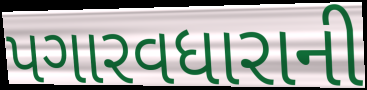
પગારવધારાની